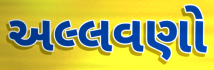
અલ્લવણો